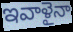
ఇవాళైనా